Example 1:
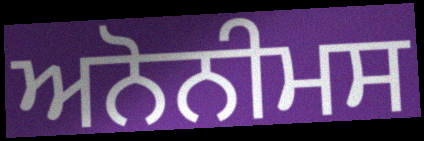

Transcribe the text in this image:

ਅਨੋਨੀਮਸ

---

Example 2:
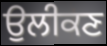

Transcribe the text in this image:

ਉਲੀਕਣ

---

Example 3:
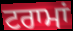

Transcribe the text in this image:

ਟਰਾਮਾਂ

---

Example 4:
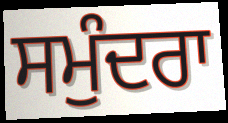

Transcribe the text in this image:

ਸਮੁੰਦਰਾ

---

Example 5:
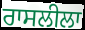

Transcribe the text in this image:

ਰਾਸਲੀਲਾ